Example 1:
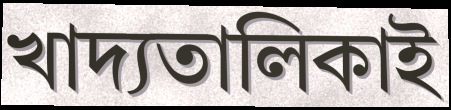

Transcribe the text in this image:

খাদ্যতালিকাই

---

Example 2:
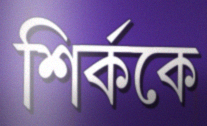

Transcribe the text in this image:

শির্ককে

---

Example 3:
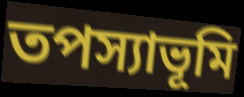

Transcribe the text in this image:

তপস্যাভূমি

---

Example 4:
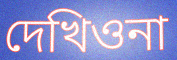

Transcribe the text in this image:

দেখিওনা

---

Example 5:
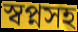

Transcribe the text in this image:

স্বপ্নসহ